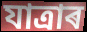
যাত্ৰাৰ